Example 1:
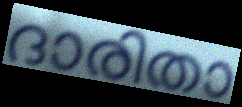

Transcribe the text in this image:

ദാരിതാ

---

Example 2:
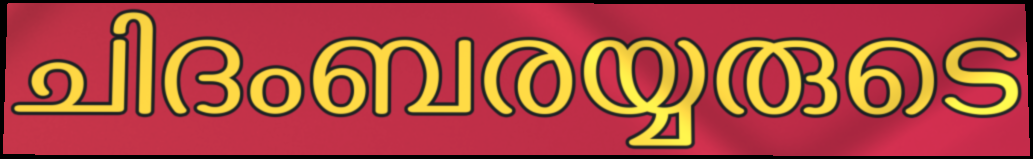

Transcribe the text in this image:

ചിദംബരയ്യരുടെ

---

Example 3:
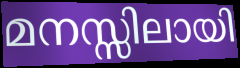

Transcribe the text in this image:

മനസ്സിലായി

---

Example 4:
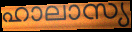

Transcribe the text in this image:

ഹാലാസ്യ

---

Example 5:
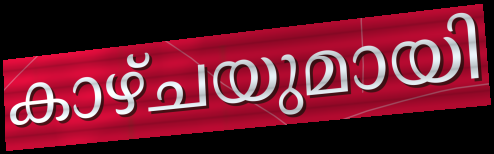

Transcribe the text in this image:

കാഴ്ചയുമായി